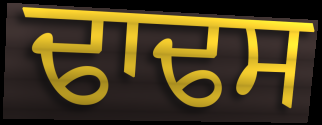
ਢਾਢਸ